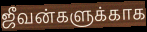
ஜீவன்களுக்காக